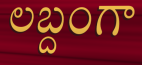
లబ్దంగా